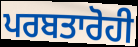
ਪਰਬਤਾਰੋਹੀ